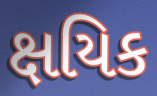
ક્ષયિક